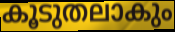
കൂടുതലാകും